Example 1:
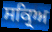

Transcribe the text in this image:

ਸਕ੍ਰਿਅ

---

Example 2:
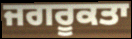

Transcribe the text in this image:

ਜਗਰੂਕਤਾ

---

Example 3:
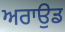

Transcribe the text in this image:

ਅਰਾਉਡ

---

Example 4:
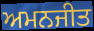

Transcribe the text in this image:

ਅਮਨਜੀਤ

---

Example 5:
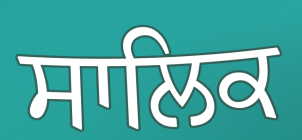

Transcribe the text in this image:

ਸਾਲਿਕ